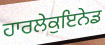
ਹਾਰਲੇਕੁਇਨੇਡ